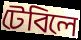
টেবিলে